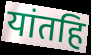
यांतहि